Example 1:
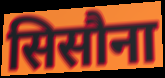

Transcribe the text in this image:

सिसौना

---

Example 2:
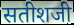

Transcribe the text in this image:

सतीशजी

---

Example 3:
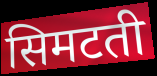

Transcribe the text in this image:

सिमटती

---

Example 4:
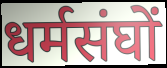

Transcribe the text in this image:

धर्मसंघों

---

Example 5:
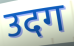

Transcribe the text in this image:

उदग